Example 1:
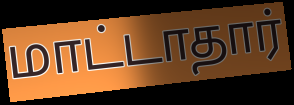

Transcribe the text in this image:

மாட்டாதார்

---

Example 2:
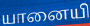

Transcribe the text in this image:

யானையி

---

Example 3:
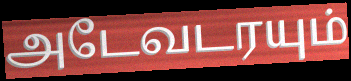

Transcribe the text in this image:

அடேவடரயும்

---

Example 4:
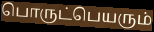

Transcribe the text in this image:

பொருட்பெயரும்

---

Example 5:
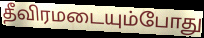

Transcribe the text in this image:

தீவிரமடையும்போது